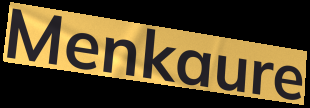
Menkaure